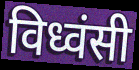
विध्वंसी